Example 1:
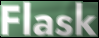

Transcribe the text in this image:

Flask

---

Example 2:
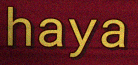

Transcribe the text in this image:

haya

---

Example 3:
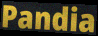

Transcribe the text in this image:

Pandia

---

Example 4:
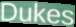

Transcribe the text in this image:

Dukes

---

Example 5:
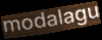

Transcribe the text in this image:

modalagu